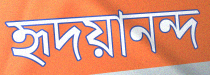
হৃদয়ানন্দ